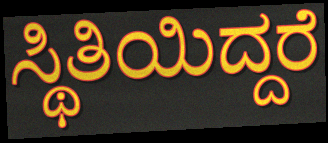
ಸ್ಥಿತಿಯಿದ್ದರೆ